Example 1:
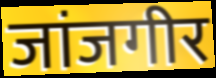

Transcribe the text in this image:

जांजगीर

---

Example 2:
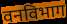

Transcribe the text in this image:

वनविभाग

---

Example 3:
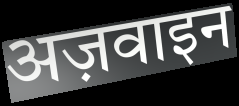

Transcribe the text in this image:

अज़वाइन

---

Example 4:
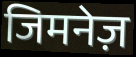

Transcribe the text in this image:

जिमनेज़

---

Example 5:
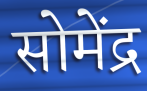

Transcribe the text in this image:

सोमेंद्र